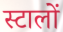
स्टालों